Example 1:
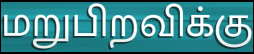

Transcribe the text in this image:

மறுபிறவிக்கு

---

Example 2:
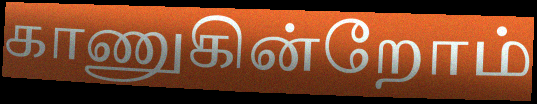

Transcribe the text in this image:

காணுகின்றோம்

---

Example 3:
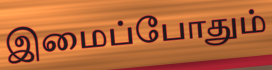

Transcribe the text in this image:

இமைப்போதும்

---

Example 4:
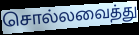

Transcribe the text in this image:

சொல்லவைத்து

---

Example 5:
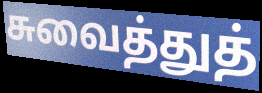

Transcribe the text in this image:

சுவைத்துத்